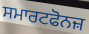
ਸਮਾਰਟਫੋਨਜ਼